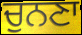
ਚੁਨਣਾ